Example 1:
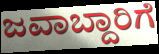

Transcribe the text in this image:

ಜವಾಬ್ದಾರಿಗೆ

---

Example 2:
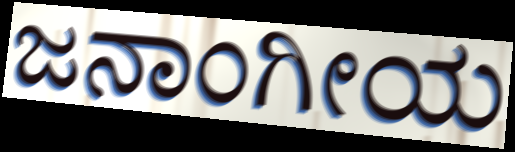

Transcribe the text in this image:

ಜನಾಂಗೀಯ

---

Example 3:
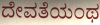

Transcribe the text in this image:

ದೇವತೆಯಂಥ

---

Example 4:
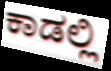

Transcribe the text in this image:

ಕಾಡಲ್ಲಿ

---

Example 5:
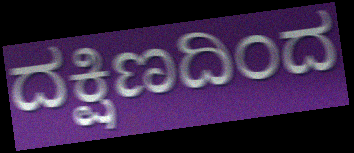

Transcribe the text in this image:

ದಕ್ಷಿಣದಿಂದ